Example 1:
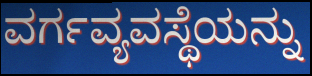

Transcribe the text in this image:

ವರ್ಗವ್ಯವಸ್ಥೆಯನ್ನು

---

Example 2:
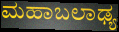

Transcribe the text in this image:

ಮಹಾಬಲಾಢ್ಯ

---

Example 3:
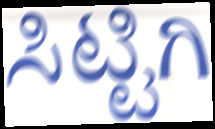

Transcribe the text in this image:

ಸಿಟ್ಟಿಗಿ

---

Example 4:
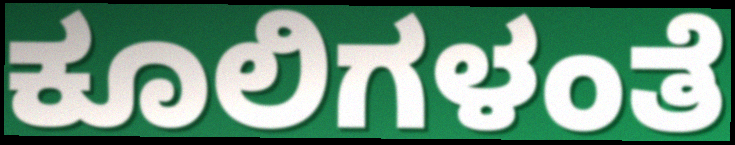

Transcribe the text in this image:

ಕೂಲಿಗಳಂತೆ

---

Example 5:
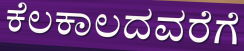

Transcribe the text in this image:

ಕೆಲಕಾಲದವರೆಗೆ